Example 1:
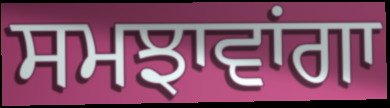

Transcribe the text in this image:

ਸਮਝਾਵਾਂਗਾ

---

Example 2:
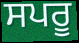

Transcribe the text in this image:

ਸਪਰੂ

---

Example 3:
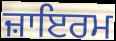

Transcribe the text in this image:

ਜ਼ਾਇਰਮ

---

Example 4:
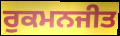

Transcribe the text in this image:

ਰੁਕਮਨਜੀਤ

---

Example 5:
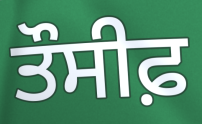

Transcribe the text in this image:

ਤੌਸੀਫ਼